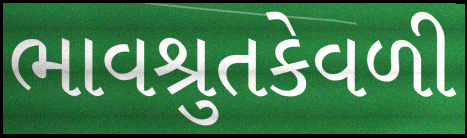
ભાવશ્રુતકેવળી